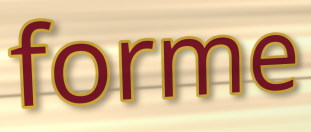
forme